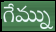
గేమ్ను